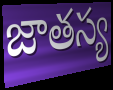
జాతస్య